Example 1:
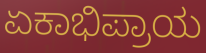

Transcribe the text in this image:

ಏಕಾಭಿಪ್ರಾಯ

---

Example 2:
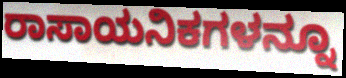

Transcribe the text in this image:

ರಾಸಾಯನಿಕಗಳನ್ನೂ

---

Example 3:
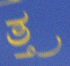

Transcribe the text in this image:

ತ್ತ್ರ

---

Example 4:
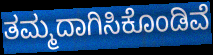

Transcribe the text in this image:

ತಮ್ಮದಾಗಿಸಿಕೊಂಡಿವೆ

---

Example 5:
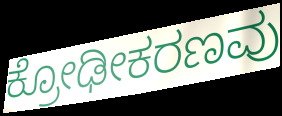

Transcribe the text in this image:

ಕ್ರೋಢೀಕರಣವು